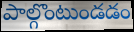
పాల్గొంటుండడం